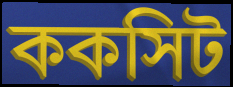
ককসিট